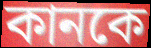
কানকে